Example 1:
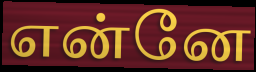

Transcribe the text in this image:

என்னே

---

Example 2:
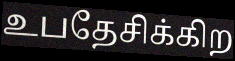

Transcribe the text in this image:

உபதேசிக்கிற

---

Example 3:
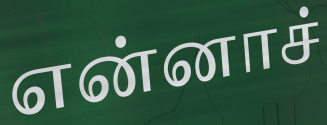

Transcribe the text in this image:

என்னாச்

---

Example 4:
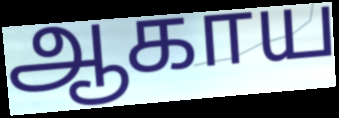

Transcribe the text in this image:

ஆகாய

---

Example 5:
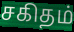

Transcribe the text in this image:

சகிதம்